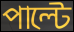
পাল্টে